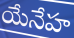
యేనేహ